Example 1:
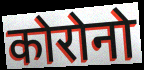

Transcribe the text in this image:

कोरोनो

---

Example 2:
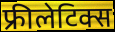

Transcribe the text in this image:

फ्रीलेटिक्स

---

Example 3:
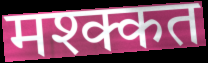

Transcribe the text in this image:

मश्क्कत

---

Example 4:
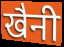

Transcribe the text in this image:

खैनी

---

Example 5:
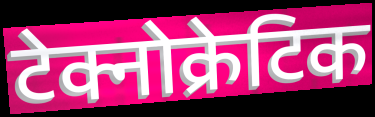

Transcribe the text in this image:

टेक्नोक्रेटिक